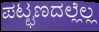
ಪಟ್ಟಣದಲ್ಲೆಲ್ಲ